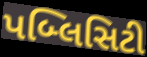
પબ્લિસિટી